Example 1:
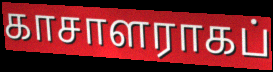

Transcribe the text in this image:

காசாளராகப்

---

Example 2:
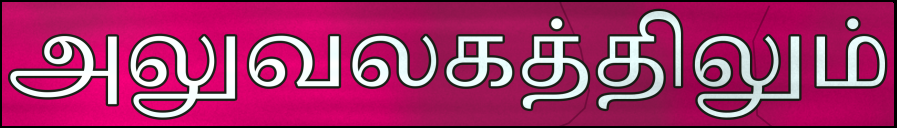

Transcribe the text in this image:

அலுவலகத்திலும்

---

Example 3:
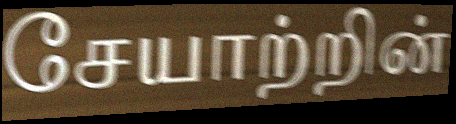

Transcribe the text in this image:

சேயாற்றின்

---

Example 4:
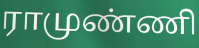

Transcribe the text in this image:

ராமுண்ணி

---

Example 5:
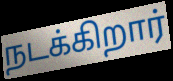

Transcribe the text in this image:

நடக்கிறார்